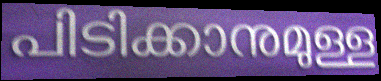
പിടിക്കാനുമുള്ള